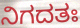
ನಿಗದತಃ